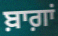
ਬ਼ਾਗ਼ਾਂ